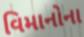
વિમાનોના